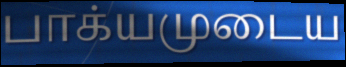
பாக்யமுடைய